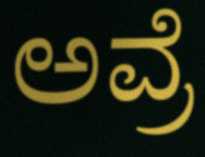
ಅವ್ರೆ